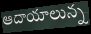
ఆదాయాలున్న